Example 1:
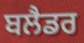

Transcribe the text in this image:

ਬਲੈਡਰ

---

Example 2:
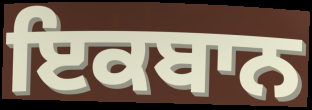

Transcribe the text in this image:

ਇਕਬਾਨ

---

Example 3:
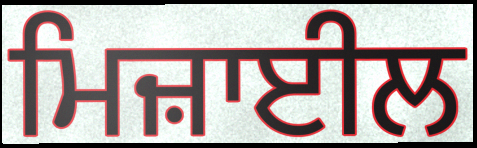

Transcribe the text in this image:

ਮਿਜ਼ਾਈਲ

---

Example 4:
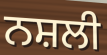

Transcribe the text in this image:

ਨਸ਼ਲੀ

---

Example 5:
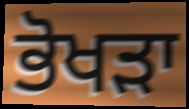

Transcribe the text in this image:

ਭੋਖੜਾ